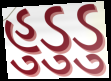
હુડુડુ